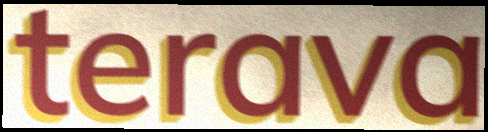
terava